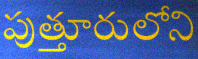
పుత్తూరులోని